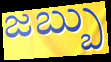
జబ్బు